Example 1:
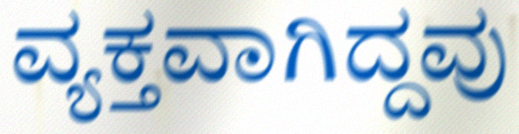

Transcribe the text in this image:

ವ್ಯಕ್ತವಾಗಿದ್ದವು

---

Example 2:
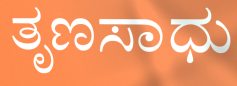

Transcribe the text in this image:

ತೃಣಸಾಧು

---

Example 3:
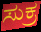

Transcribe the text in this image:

ಸುಕ್ರ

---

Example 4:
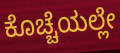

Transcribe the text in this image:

ಕೊಚ್ಚೆಯಲ್ಲೇ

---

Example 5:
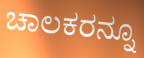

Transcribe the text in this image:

ಚಾಲಕರನ್ನೂ